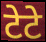
टेटे